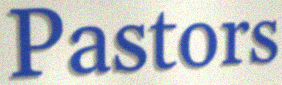
Pastors